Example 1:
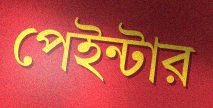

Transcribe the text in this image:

পেইন্টার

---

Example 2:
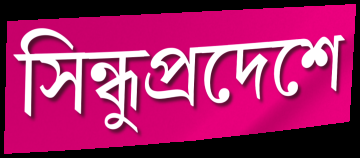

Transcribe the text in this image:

সিন্ধুপ্রদেশে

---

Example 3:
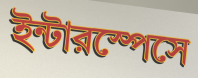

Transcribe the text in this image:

ইন্টারস্পেসে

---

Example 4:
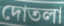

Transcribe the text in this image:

দোতলা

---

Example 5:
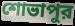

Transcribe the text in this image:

শোভাপুর